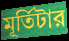
মূর্তিটার